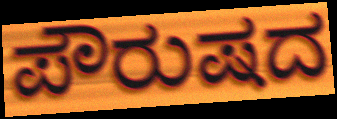
ಪೌರುಷದ